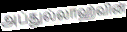
அப்துல்லாஹ்வின்